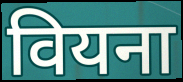
वियना